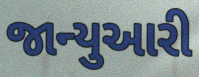
જાન્યુઆરી